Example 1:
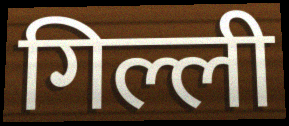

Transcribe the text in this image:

गिल्ली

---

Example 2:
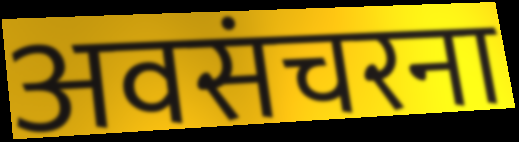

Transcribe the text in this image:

अवसंचरना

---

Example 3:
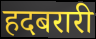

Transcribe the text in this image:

हदबरारी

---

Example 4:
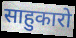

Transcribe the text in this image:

साहुकारो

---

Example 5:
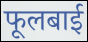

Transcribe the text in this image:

फूलबाई